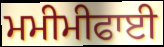
ਮਮੀਮੀਫਾਈ